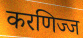
करणिज्ज